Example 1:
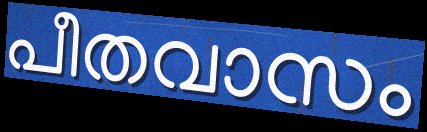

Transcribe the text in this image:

പീതവാസം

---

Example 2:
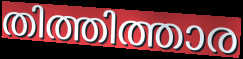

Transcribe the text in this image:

തിത്തിത്താര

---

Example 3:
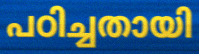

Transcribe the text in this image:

പഠിച്ചതായി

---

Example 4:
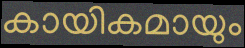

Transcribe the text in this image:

കായികമായും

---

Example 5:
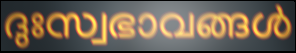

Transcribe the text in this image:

ദുഃസ്വഭാവങ്ങൾ